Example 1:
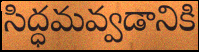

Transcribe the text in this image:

సిద్ధమవ్వడానికి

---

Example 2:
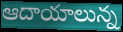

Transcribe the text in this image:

ఆదాయాలున్న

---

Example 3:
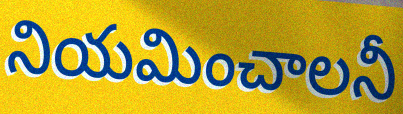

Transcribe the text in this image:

నియమించాలనీ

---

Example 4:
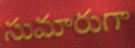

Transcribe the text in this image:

సుమారుగా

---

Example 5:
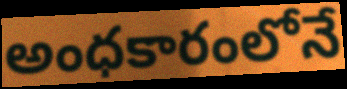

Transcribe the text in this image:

అంధకారంలోనే